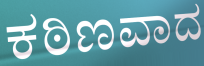
ಕಠಿಣವಾದ